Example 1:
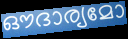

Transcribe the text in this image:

ഔദാര്യമോ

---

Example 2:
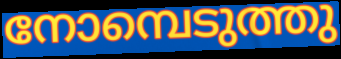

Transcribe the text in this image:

നോമ്പെടുത്തു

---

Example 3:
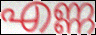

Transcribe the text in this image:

എണ്ണ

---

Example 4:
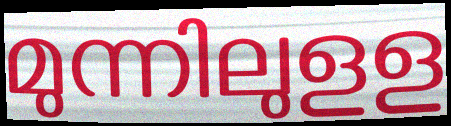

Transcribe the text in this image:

മുന്നിലുളള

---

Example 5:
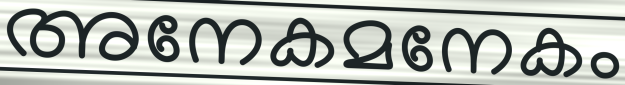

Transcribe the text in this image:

അനേകമനേകം